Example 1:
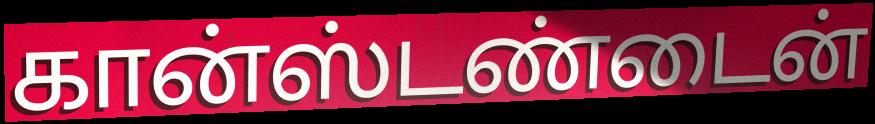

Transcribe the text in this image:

கான்ஸ்டண்டைன்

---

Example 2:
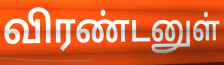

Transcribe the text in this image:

விரண்டனுள்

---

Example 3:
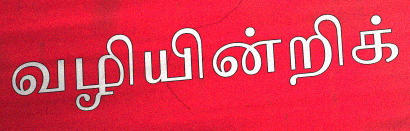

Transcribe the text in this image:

வழியின்றிக்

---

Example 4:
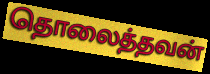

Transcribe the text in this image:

தொலைத்தவன்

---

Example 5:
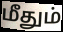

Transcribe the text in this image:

மீதும்